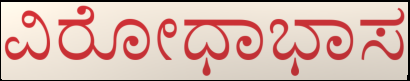
ವಿರೋಧಾಭಾಸ